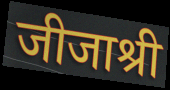
जीजाश्री